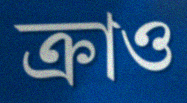
ক্রাও